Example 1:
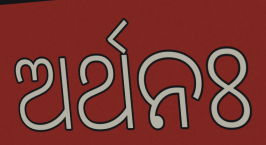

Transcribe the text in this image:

ଅର୍ଥନଃ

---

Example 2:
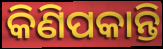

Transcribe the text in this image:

କିଣିପକାନ୍ତି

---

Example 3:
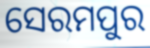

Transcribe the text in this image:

ସେରମପୁର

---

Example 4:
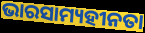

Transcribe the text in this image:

ଭାରସାମ୍ୟହୀନତା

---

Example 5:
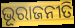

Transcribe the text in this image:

ଭୂରାଜନୀତି